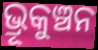
ଭ୍ରୂକୁଞ୍ଚନ